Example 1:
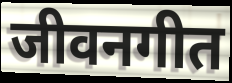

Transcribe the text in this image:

जीवनगीत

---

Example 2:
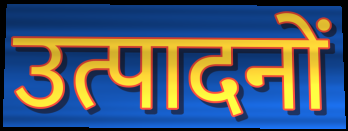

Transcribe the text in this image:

उत्पादनों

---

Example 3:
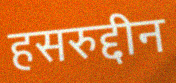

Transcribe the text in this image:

हसरुद्दीन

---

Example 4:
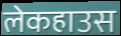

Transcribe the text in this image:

लेकहाउस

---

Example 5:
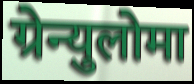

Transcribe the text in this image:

ग्रेन्युलोमा